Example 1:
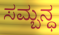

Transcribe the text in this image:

ಸಮ್ಬನ್ಧ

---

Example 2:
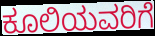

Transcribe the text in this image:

ಕೂಲಿಯವರಿಗೆ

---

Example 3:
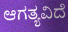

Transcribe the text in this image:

ಆಗತ್ಯವಿದೆ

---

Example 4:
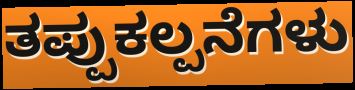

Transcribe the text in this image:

ತಪ್ಪುಕಲ್ಪನೆಗಳು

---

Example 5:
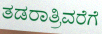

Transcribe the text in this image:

ತಡರಾತ್ರಿವರೆಗೆ